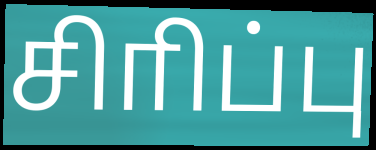
சிரிப்பு